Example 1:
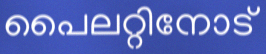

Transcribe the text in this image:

പൈലറ്റിനോട്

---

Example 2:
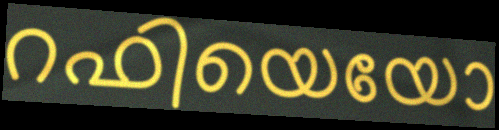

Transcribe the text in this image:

റഫിയെയോ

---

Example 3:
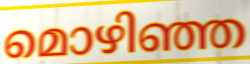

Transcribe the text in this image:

മൊഴിഞ്ഞ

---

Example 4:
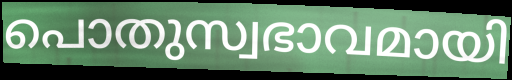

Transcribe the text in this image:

പൊതുസ്വഭാവമായി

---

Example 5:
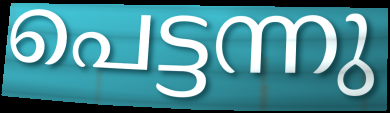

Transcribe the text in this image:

പെട്ടന്നു